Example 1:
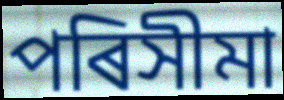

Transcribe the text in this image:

পৰিসীমা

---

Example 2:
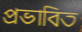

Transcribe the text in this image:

প্ৰভাবিত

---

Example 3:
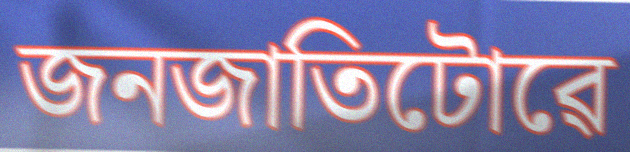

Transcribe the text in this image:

জনজাতিটোৱে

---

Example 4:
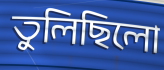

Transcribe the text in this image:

তুলিছিলো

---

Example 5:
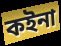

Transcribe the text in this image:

কইনা